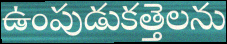
ఉంపుడుకత్తెలను